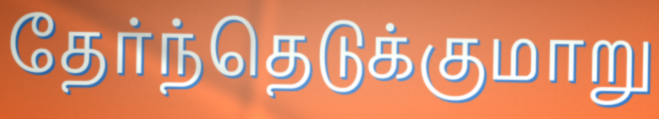
தேர்ந்தெடுக்குமாறு